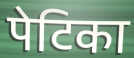
पेटिका